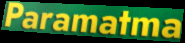
Paramatma